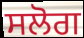
ਸਲੋਗ